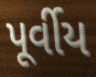
પૂર્વીય